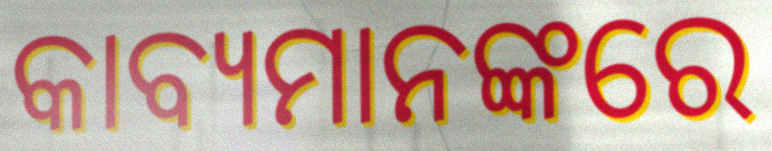
କାବ୍ୟମାନଙ୍କରେ